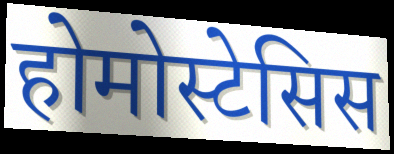
होमोस्टेसिस